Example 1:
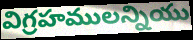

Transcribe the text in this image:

విగ్రహములన్నియు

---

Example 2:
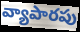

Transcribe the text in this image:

వ్యాపారపు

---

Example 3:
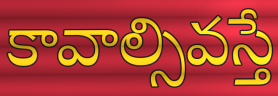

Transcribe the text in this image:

కావాల్సివస్తే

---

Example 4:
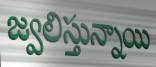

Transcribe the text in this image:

జ్వలిస్తున్నాయి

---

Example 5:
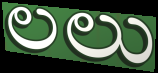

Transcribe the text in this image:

లలు